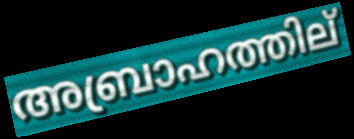
അബ്രാഹത്തില്